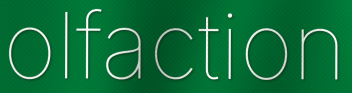
olfaction